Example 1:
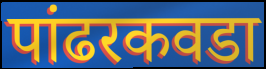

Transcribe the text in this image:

पांढरकवडा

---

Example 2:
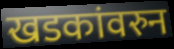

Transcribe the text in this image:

खडकांवरुन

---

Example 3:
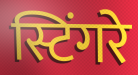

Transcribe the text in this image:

स्टिंगरे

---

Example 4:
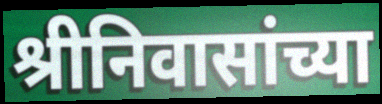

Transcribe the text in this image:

श्रीनिवासांच्या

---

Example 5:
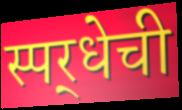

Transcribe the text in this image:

स्पर्धेची